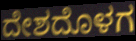
ದೇಶದೊಳಗ